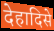
देहादिसे